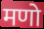
मणो